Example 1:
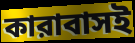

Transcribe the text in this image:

কারাবাসই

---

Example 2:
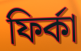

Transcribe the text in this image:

ফির্কা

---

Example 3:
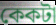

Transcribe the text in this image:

কেকটা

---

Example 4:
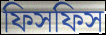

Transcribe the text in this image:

ফিসফিস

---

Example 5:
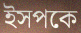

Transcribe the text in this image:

ইসপকে